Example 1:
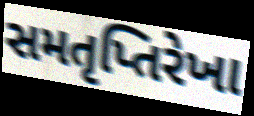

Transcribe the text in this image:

સમતૃપ્તિરેખા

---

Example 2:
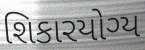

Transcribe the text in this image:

શિકારયોગ્ય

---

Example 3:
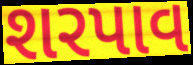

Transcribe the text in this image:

શરપાવ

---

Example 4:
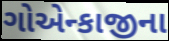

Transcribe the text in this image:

ગોએન્કાજીના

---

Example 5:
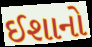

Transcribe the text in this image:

ઈશાનો